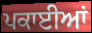
ਪਕਾਈਆਂ